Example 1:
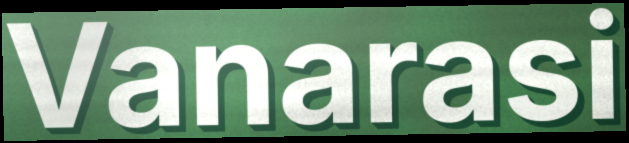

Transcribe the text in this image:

Vanarasi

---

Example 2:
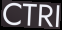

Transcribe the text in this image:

CTRI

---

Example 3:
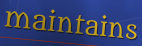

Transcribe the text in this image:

maintains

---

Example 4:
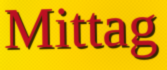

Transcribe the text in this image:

Mittag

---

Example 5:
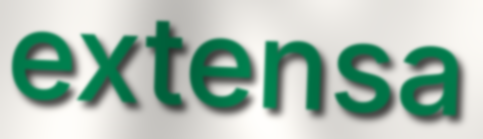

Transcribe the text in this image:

extensa